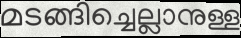
മടങ്ങിച്ചെല്ലാനുള്ള